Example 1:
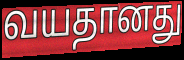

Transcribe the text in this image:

வயதானது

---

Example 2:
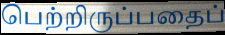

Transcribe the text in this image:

பெற்றிருப்பதைப்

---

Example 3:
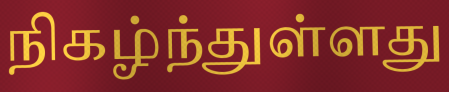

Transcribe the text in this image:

நிகழ்ந்துள்ளது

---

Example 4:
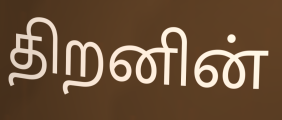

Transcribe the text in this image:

திறனின்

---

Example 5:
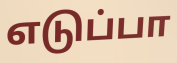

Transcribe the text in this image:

எடுப்பா